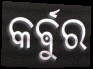
କର୍ଵୁର